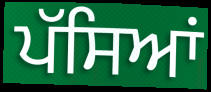
ਪੱਸਿਆਂ